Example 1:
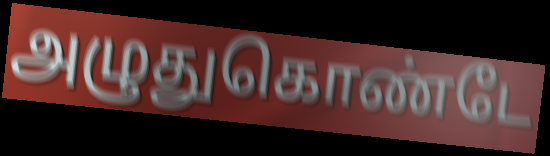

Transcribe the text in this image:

அழுதுகொண்டே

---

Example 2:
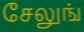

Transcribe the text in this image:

சேலுங்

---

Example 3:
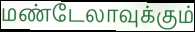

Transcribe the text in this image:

மண்டேலாவுக்கும்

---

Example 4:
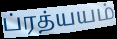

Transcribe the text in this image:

ப்ரத்யயம்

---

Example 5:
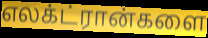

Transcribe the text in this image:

எலக்ட்ரான்களை